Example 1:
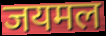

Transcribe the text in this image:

जयमल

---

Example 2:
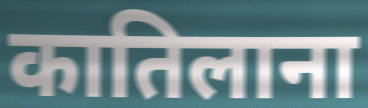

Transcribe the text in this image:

कातिलाना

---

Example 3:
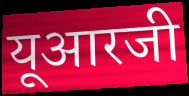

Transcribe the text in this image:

यूआरजी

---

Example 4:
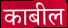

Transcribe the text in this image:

काबील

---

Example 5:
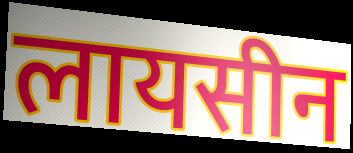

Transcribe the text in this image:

लायसीन